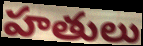
హతులు